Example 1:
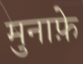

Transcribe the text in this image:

मुनाफ़े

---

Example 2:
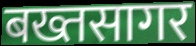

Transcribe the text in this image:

बख्तसागर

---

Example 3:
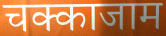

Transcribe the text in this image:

चक्काजाम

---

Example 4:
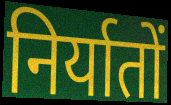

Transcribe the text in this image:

निर्यातों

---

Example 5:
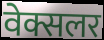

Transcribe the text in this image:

वेक्सलर